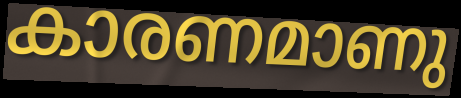
കാരണമാണു